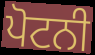
ਪੋਟਨੀ